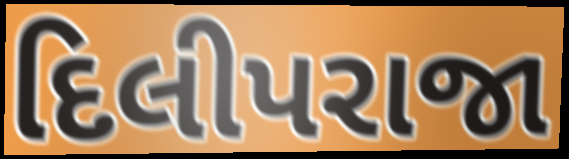
દિલીપરાજા